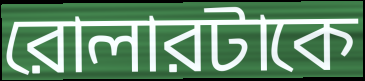
রোলারটাকে